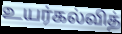
உயர்கல்வித்